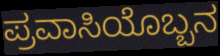
ಪ್ರವಾಸಿಯೊಬ್ಬನ